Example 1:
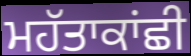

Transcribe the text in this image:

ਮਹੱਤਾਕਾਂਛੀ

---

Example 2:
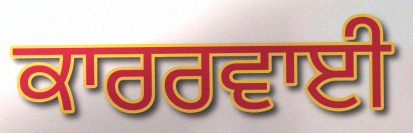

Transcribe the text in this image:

ਕਾਰਰਵਾਈ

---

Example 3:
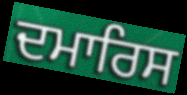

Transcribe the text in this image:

ਦਮਾਰਿਸ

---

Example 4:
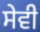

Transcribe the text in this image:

ਸੇਵੀ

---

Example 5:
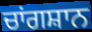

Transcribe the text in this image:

ਚਾਂਗਸ਼ਾਨ